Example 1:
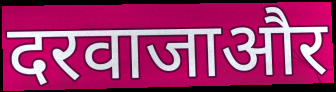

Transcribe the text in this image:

दरवाजाऔर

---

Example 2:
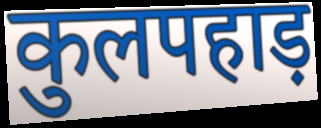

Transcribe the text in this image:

कुलपहाड़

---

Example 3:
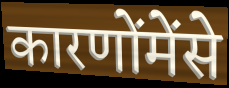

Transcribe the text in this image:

कारणोंमेंसे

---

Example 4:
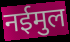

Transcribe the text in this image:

नईमुल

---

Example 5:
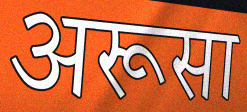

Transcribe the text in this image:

अरूसा